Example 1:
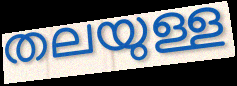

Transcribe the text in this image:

തലയുള്ള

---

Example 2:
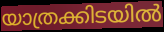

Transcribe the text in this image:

യാത്രക്കിടയിൽ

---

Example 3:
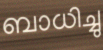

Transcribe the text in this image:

ബാധിച്ചു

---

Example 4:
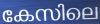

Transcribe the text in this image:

കേസിലെ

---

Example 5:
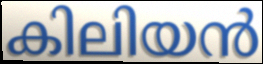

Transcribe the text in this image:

കിലിയൻ